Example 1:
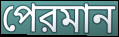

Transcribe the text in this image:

পেরমান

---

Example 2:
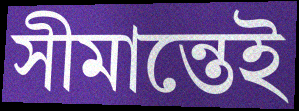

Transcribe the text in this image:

সীমান্তেই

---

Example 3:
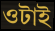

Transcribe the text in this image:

ওটাই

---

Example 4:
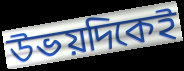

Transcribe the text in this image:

উভয়দিকেই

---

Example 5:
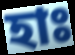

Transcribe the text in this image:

হাঃ